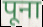
पूना